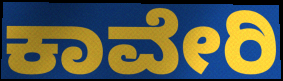
ಕಾವೇರಿ